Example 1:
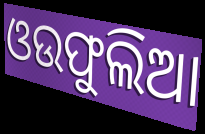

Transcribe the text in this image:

ଓଉଫୁଲିଆ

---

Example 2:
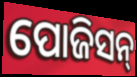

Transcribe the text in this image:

ପୋଜିସନ୍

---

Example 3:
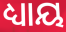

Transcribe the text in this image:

ଧ୍ୟାୟ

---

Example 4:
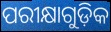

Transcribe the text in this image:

ପରୀକ୍ଷାଗୁଡ଼ିକ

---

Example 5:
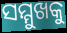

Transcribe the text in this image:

ସମ୍ମୁଖକୁ